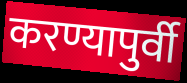
करण्यापुर्वी